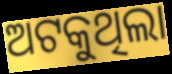
ଅଟକୁଥିଲା